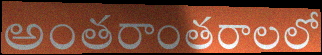
అంతరాంతరాలలో